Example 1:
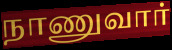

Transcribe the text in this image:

நாணுவார்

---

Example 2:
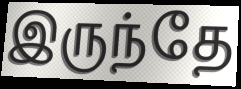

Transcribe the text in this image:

இருந்தே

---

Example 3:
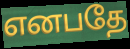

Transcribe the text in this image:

எனபதே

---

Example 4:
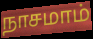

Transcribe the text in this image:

நாசமாம்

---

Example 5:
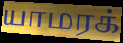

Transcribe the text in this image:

யாமரக்